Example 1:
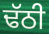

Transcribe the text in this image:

ਢੱਠੀ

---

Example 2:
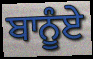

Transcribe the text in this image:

ਬਾਨੂੰਏ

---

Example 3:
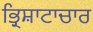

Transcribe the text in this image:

ਭ੍ਰਿਸ਼ਾਟਾਚਾਰ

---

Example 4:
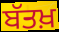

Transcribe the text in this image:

ਬੱਤਖ਼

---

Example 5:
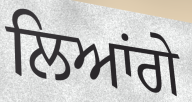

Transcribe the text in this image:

ਲਿਆਂਗੇ